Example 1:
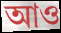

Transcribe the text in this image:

আও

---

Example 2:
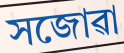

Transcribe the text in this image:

সজোৱা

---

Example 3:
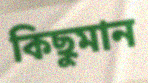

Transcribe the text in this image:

কিছুমান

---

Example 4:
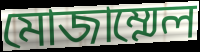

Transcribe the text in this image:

মোজাম্মেল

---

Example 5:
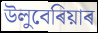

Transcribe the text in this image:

উলুবেৰিয়াৰ